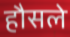
हौसले